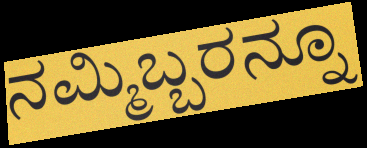
ನಮ್ಮಿಬ್ಬರನ್ನೂ